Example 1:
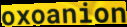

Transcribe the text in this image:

oxoanion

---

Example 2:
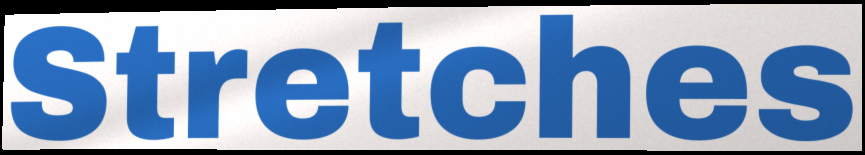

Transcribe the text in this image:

Stretches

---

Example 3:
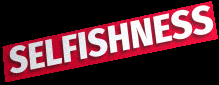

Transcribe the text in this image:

SELFISHNESS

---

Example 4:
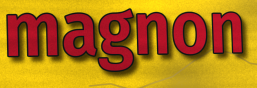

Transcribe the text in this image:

magnon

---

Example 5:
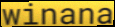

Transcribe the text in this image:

winana